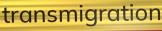
transmigration